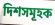
দিশসমূহক